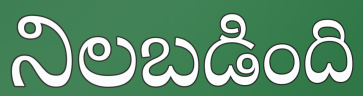
నిలబడింది